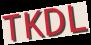
TKDL